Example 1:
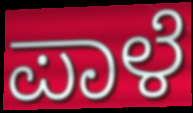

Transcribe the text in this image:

ಪಾಳೆ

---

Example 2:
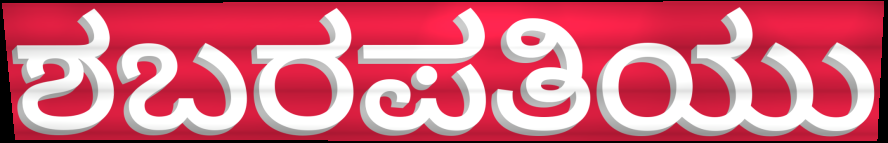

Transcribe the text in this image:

ಶಬರಪತಿಯು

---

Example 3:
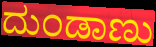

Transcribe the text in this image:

ದುಂಡಾಣು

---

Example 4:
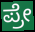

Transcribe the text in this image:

ಪ್ರೇ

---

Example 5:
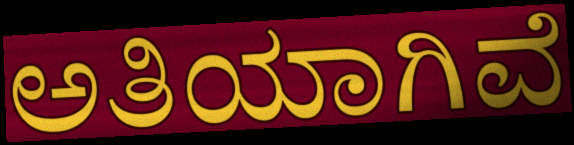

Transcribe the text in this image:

ಅತಿಯಾಗಿವೆ